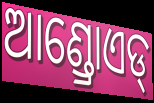
ଆଣ୍ଡ୍ରୋଏଡ୍